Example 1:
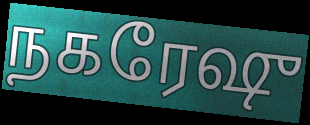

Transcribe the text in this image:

நகரேஷு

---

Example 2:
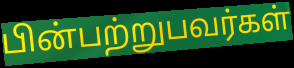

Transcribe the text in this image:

பின்பற்றுபவர்கள்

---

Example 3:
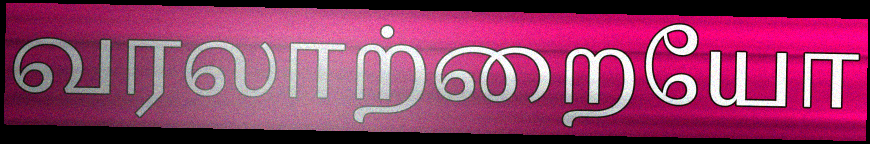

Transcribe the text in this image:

வரலாற்றையோ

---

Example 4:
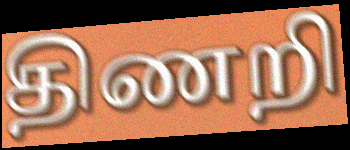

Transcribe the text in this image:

திணறி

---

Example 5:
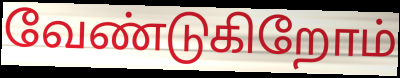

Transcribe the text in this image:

வேண்டுகிறோம்